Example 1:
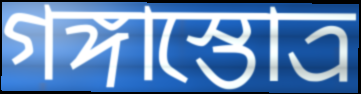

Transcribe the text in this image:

গঙ্গাস্তোত্র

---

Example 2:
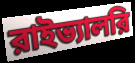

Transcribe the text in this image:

রাইভ্যালরি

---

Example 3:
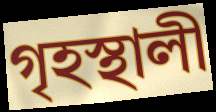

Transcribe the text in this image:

গৃহস্থালী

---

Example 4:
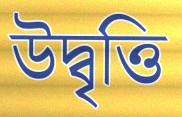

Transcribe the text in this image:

উদ্বৃত্তি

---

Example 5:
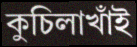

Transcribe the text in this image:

কুচিলাখাঁই